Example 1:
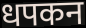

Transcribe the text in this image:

धपकन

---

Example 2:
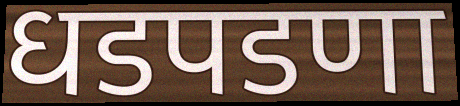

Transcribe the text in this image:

धडपडणा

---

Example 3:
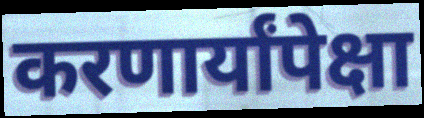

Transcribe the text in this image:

करणार्यांपेक्षा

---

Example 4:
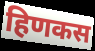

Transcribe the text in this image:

हिणकस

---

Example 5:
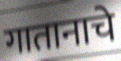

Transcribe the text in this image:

गातानाचे